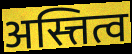
अस्त्तित्व